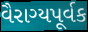
વૈરાગ્યપૂર્વક